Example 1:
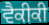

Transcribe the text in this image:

ਵੈਕੀਕੀ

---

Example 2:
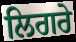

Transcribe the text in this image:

ਲਿਗਰੇ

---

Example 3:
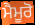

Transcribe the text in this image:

ਮੈਮੂਰੋ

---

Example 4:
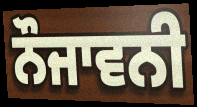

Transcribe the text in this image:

ਨੌਜਾਵਨੀ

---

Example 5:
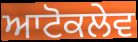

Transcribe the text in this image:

ਆਟੋਕਲੇਵ